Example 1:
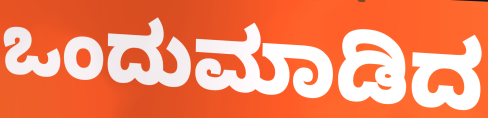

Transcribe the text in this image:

ಒಂದುಮಾಡಿದ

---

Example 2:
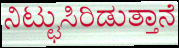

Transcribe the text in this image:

ನಿಟ್ಟುಸಿರಿಡುತ್ತಾನೆ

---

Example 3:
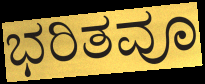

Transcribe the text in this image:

ಭರಿತವೂ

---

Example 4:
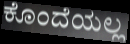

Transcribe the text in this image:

ಕೊಂದೆಯಲ್ಲ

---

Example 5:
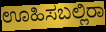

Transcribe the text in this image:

ಊಹಿಸಬಲ್ಲಿರಾ